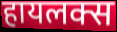
हायलक्स